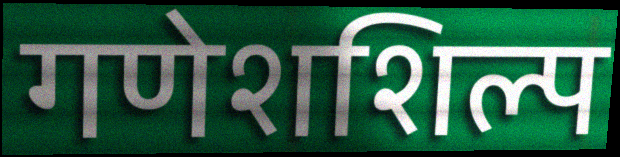
गणेशशिल्प